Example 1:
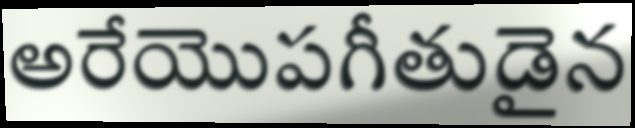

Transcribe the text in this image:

అరేయొపగీతుడైన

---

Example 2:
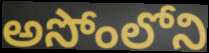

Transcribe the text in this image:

అసోంలోని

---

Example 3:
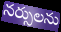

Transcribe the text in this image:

నర్సులను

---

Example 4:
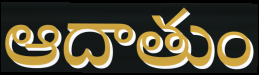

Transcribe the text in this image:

ఆదాతుం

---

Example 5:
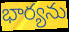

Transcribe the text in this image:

భార్యను